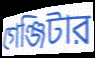
গেঞ্জিটার